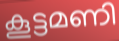
കൂട്ടമണി